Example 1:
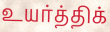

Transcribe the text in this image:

உயர்த்திக்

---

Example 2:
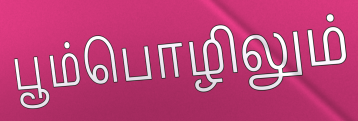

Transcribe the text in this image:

பூம்பொழிலும்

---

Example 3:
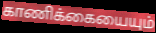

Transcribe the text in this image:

காணிக்கையையும்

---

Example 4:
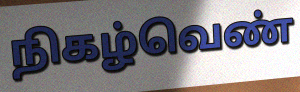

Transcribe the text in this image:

நிகழ்வெண்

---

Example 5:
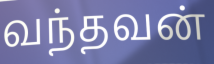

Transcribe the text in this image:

வந்தவன்